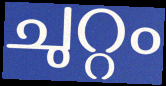
ചുറ്റം